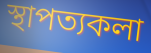
স্থাপত্যকলা